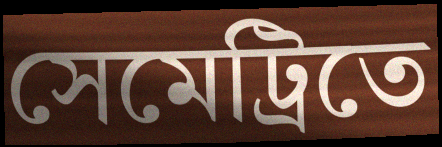
সেমেট্রিতে